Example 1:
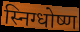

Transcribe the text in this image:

स्निग्धोष्ण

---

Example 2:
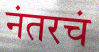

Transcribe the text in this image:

नंतरचं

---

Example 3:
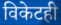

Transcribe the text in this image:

विकेटही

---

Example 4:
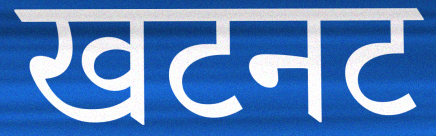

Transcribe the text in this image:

खटनट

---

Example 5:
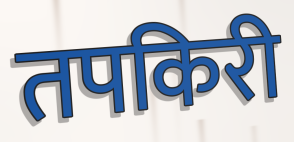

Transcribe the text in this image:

तपकिरी